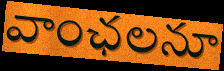
వాంఛలనూ